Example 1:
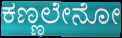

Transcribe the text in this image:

ಕಣ್ಣಲೇನೋ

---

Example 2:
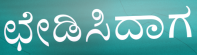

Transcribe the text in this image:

ಛೇಡಿಸಿದಾಗ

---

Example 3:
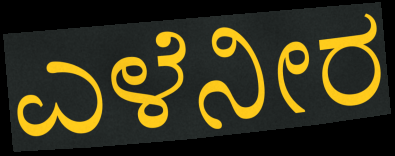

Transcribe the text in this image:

ಎಳೆನೀರ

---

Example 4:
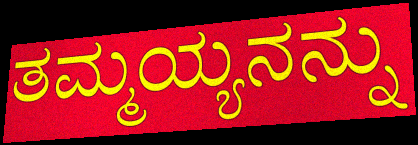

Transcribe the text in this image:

ತಮ್ಮಯ್ಯನನ್ನು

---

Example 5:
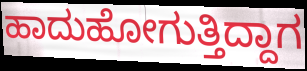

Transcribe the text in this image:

ಹಾದುಹೋಗುತ್ತಿದ್ದಾಗ